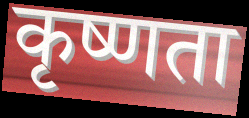
कृष्णता